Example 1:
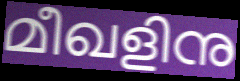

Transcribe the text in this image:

മീഖളിനു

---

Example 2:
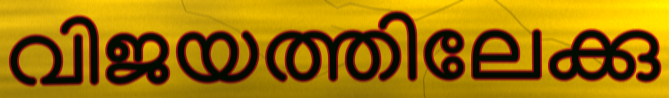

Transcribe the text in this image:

വിജയത്തിലേക്കു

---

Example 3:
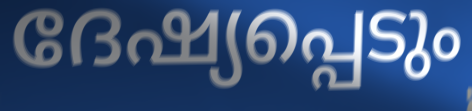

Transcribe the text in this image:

ദേഷ്യപ്പെടും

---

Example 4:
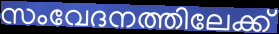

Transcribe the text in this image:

സംവേദനത്തിലേക്ക്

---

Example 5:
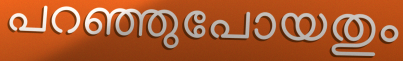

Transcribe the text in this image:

പറഞ്ഞുപോയതും